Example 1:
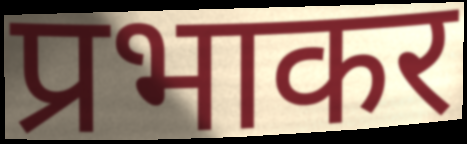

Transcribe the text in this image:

प्रभाकर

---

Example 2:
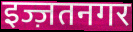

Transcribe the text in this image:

इज्ज़तनगर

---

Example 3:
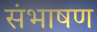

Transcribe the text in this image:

संभाषण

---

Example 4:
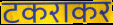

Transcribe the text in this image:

टकराकर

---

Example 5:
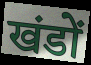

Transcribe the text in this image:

खंडों